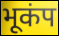
भूकंप